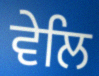
ਵੇਲਿ